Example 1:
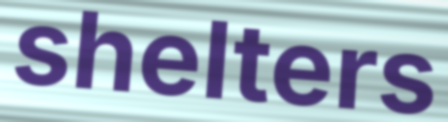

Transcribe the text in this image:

shelters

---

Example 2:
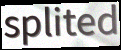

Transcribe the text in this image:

splited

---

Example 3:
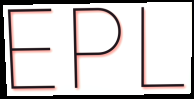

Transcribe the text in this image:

EPL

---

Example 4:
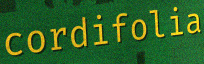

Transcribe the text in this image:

cordifolia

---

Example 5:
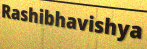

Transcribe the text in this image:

Rashibhavishya